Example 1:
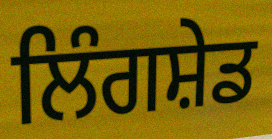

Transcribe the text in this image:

ਲਿੰਗਸ਼ੇਡ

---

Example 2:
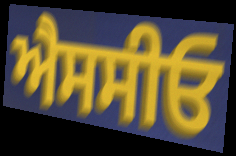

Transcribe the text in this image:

ਐਸਸੀਓ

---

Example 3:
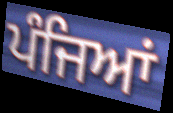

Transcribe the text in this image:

ਪੰਜਿਆਂ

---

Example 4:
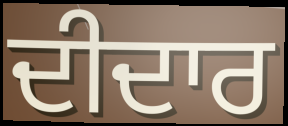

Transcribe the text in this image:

ਦੀਦਾਰ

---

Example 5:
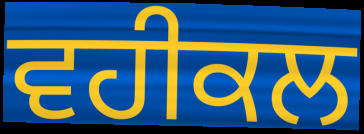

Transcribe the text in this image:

ਵਹੀਕਲ